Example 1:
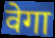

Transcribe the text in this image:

वेगा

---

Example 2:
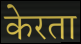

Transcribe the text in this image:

केरता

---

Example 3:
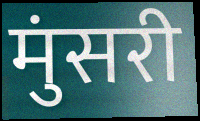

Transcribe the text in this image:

मुंसरी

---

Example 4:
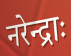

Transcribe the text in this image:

नरेन्द्राः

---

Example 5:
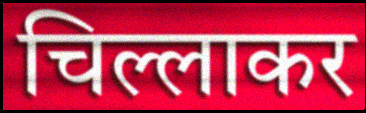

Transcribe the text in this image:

चिल्लाकर